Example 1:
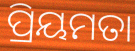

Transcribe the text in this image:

ପ୍ରିୟମତା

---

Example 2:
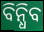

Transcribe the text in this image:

ବିନ୍ଧିବ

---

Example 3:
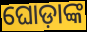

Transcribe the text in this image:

ଘୋଡ଼ାଙ୍କ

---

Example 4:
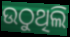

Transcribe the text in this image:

ଉଠୁଥିଲି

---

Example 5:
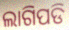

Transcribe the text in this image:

ଲାଗିପଡି